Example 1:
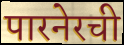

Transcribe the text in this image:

पारनेरची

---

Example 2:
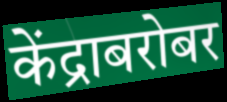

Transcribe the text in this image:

केंद्राबरोबर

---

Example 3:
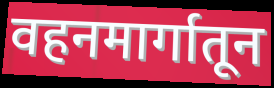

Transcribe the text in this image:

वहनमार्गातून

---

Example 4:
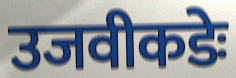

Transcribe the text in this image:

उजवीकडेः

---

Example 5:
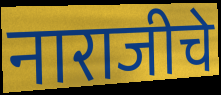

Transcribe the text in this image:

नाराजीचे